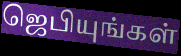
ஜெபியுங்கள்